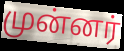
முன்னர்